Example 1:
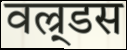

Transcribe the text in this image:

वल्र्डस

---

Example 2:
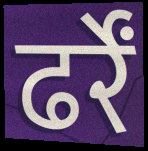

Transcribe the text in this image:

ढर्रें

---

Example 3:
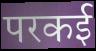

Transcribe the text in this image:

परकई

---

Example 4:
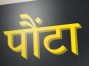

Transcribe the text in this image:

पौंटा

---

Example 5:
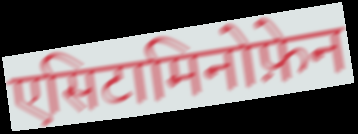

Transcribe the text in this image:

एसिटामिनोफ़ेन